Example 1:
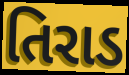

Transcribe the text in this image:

તિરાડ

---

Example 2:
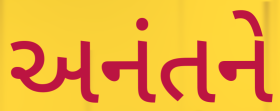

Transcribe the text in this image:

અનંતને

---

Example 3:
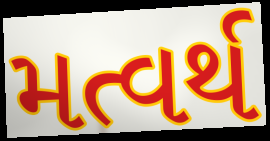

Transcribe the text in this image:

મત્વર્થ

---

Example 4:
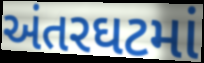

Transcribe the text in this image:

અંતરઘટમાં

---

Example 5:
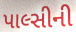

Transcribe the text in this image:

પાલ્સીની